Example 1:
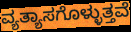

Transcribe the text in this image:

ವ್ಯತ್ಯಾಸಗೊಳ್ಳುತ್ತವೆ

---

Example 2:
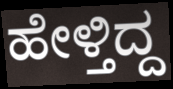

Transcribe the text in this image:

ಹೇಳ್ತಿದ್ದ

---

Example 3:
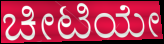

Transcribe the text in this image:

ಚೀಟಿಯೇ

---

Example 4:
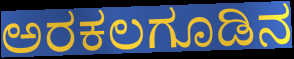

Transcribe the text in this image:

ಅರಕಲಗೂಡಿನ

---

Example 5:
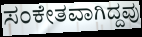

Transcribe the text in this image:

ಸಂಕೇತವಾಗಿದ್ದವು